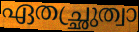
ഏതച്ഛ്രുത്വാ